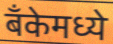
बँकेमध्ये